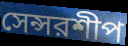
সেন্সরশীপ